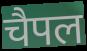
चैपल